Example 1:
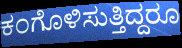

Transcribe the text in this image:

ಕಂಗೊಳಿಸುತ್ತಿದ್ದರೂ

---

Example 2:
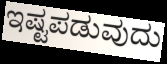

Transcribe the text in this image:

ಇಷ್ಟಪಡುವುದು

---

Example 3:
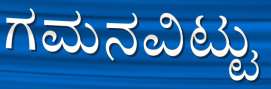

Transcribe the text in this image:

ಗಮನವಿಟ್ಟು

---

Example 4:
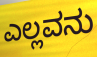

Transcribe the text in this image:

ಎಲ್ಲವನು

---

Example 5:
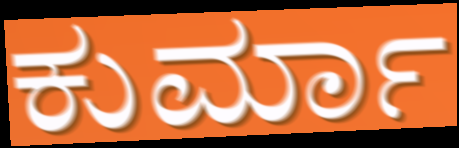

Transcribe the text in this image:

ಕುರ್ಮಾ